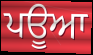
ਪਊਆ